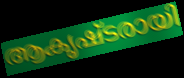
ആകൃഷ്ടരായി